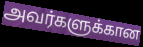
அவர்களுக்கான